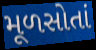
મૂળસોતાં